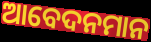
ଆବେଦନମାନ